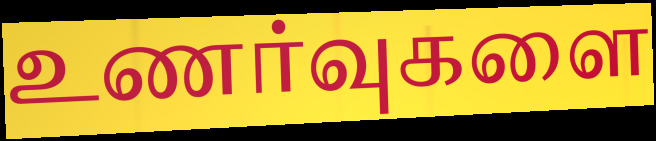
உணர்வுகளை